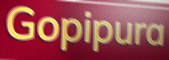
Gopipura